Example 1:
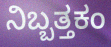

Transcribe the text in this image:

ನಿಬ್ಬತ್ತಕಂ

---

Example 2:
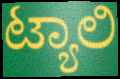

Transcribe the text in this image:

ಟ್ಯಾಲಿ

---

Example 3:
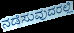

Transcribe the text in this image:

ನಡೆಸುವುದರಲ್ಲಿ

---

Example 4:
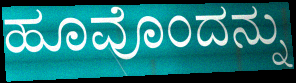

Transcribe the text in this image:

ಹೂವೊಂದನ್ನು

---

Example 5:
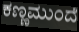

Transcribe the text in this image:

ಕಣ್ಣಮುಂದೆ